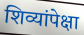
शिव्यांपेक्षा